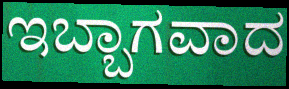
ಇಬ್ಬಾಗವಾದ